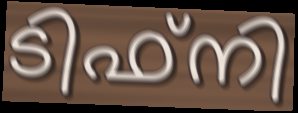
ടിഫ്നി